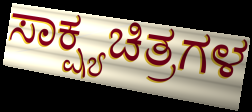
ಸಾಕ್ಷ್ಯಚಿತ್ರಗಳ